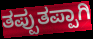
ತಪ್ಪುತಪ್ಪಾಗಿ